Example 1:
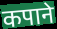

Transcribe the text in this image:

कपाने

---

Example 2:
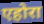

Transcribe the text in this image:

एहोरा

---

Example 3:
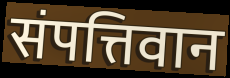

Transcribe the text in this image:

संपत्तिवान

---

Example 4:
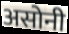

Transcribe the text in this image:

असोनी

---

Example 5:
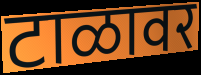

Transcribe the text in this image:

टाळावर